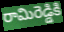
రామిరెడ్డికి